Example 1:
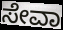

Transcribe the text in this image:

ಸೇವಾ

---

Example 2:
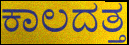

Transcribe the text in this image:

ಕಾಲದತ್ತ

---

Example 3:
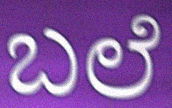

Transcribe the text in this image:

ಬಲೆ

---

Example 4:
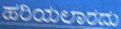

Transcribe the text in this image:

ಹರಿಯಲಾರದು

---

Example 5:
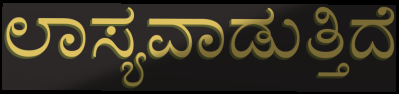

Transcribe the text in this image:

ಲಾಸ್ಯವಾಡುತ್ತಿದೆ